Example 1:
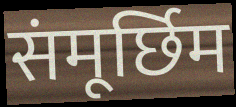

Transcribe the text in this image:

संमूर्छिम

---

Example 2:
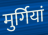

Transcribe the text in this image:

मुर्गियां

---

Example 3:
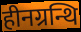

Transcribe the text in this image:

हीनग्रन्थि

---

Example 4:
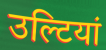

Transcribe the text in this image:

उल्‍टियां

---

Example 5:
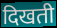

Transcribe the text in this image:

दिखती